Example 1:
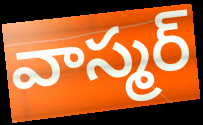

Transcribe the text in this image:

వాస్మర్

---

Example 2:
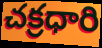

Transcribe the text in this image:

చక్రధారి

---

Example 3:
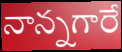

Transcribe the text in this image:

నాన్నగారే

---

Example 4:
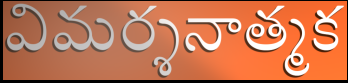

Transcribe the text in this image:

విమర్శనాత్మక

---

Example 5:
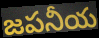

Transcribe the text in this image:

జపనీయ